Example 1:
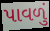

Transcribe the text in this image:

પાવળું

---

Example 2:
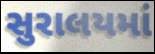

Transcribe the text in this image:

સુરાલયમાં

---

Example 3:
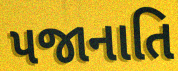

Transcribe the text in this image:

પજાનાતિ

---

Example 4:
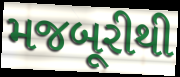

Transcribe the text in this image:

મજબૂરીથી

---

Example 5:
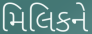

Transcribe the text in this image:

મિલિકને